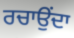
ਰਚਾਉਂਦਾ